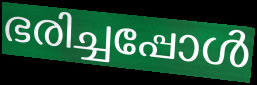
ഭരിച്ചപ്പോൾ